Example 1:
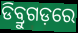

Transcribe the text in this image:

ଡିବ୍ରୁଗଡ଼ରେ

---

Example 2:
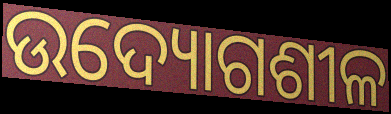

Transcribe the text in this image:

ଉଦ୍ୟୋଗଶୀଳ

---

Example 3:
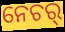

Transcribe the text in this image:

ନେଚର୍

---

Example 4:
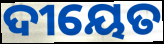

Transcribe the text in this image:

ଦୀୟେତ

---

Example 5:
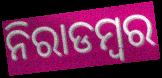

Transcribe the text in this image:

ନିରାଡମ୍ବର